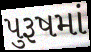
પુરૂષમાં